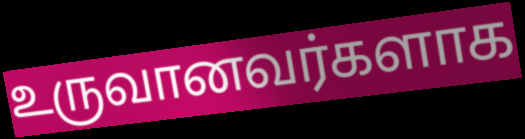
உருவானவர்களாக